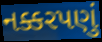
નક્કરપણું